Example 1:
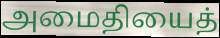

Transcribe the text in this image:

அமைதியைத்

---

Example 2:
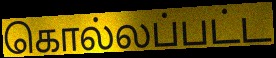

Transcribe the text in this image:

கொல்லப்பட்ட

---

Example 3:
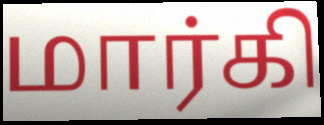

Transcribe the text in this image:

மார்கி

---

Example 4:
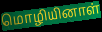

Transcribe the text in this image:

மொழியினாள்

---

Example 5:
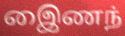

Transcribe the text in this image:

இைணந்